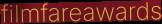
filmfareawards